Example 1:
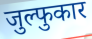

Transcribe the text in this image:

जुल्फुकार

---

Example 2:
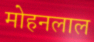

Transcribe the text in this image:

मोहनलाल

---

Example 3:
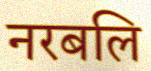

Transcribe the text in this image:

नरबलि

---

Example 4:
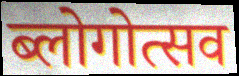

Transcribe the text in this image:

ब्लोगोत्सव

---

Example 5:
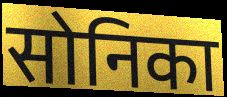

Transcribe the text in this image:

सोनिका